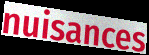
nuisances